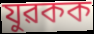
যুৱকক